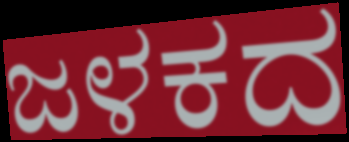
ಜಳಕದ